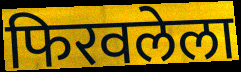
फिरवलेला